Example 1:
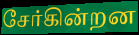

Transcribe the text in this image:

சேர்கின்றன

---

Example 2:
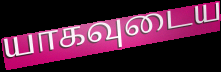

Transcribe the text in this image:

யாகவுடைய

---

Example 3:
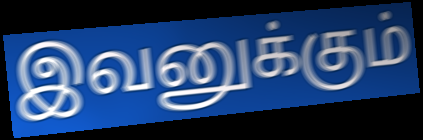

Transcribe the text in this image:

இவனுக்கும்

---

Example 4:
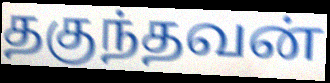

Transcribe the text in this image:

தகுந்தவன்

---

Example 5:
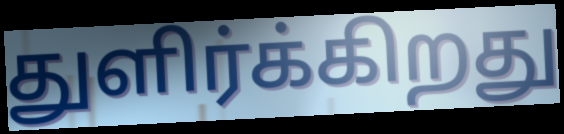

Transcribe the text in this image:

துளிர்க்கிறது